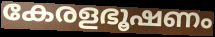
കേരളഭൂഷണം